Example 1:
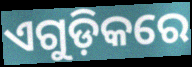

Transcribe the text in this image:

ଏଗୁଡ଼ିକରେ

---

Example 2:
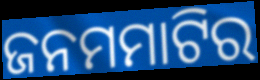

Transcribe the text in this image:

ଜନମମାଟିର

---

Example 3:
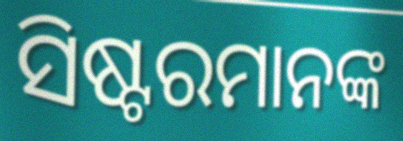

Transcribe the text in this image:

ସିଷ୍ଟରମାନଙ୍କ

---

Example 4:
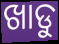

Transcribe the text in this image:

ଖାଡୁ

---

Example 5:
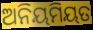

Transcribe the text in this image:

ଅନିୟମିୟତ